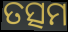
ତତ୍ସମ